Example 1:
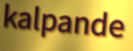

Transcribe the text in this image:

kalpande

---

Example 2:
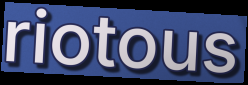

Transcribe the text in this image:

riotous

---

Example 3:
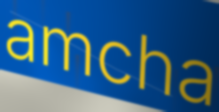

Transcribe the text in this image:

amcha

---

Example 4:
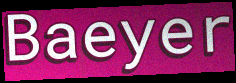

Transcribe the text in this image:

Baeyer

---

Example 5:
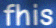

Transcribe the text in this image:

fhis